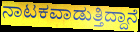
ನಾಟಕವಾಡುತ್ತಿದ್ದಾನೆ